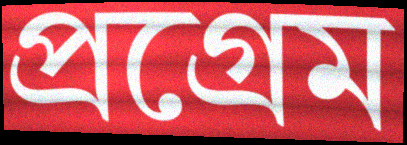
প্ৰগ্ৰেম